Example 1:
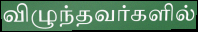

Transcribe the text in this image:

விழுந்தவர்களில்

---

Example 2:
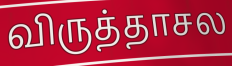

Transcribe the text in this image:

விருத்தாசல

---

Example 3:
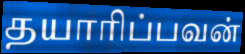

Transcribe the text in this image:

தயாரிப்பவன்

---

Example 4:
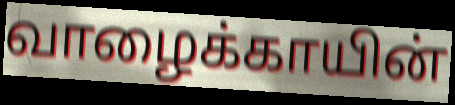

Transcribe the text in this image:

வாழைக்காயின்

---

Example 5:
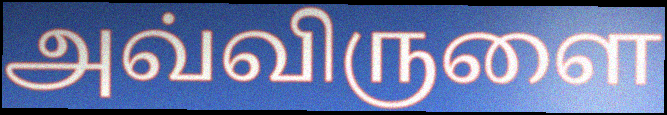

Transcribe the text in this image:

அவ்விருளை